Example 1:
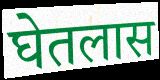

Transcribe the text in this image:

घेतलास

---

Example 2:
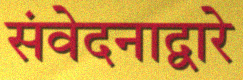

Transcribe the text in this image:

संवेदनाद्वारे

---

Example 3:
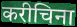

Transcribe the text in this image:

करीचिना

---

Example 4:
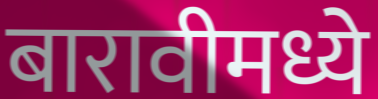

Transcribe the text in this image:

बारावीमध्ये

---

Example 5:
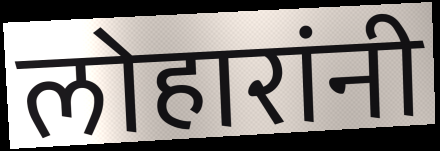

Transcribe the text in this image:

लोहारांनी